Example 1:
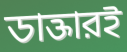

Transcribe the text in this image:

ডাক্তারই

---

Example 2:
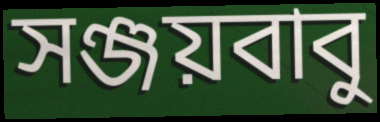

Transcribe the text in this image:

সঞ্জয়বাবু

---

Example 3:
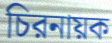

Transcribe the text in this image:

চিরনায়ক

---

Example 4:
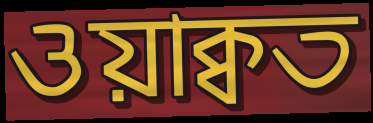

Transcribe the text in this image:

ওয়াক্বত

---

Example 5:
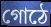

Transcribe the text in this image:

গোঠে